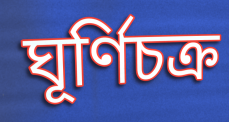
ঘূর্ণিচক্র